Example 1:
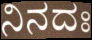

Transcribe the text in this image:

ನಿನದಃ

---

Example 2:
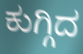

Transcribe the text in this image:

ಕುಗ್ಗಿದ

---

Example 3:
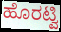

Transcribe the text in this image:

ಹೊರಟ್ವಿ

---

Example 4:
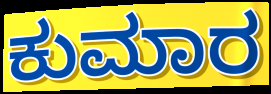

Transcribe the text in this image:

ಕುಮಾರ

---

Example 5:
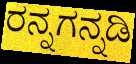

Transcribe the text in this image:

ರನ್ನಗನ್ನಡಿ